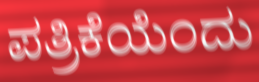
ಪತ್ರಿಕೆಯೆಂದು